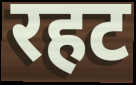
रहट